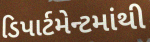
ડિપાર્ટમેન્ટમાંથી